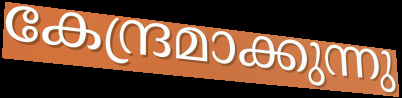
കേന്ദ്രമാക്കുന്നു